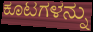
ಕೂಟಗಳನ್ನು